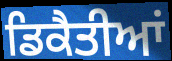
ਡਿਕੈਤੀਆਂ